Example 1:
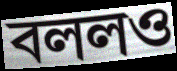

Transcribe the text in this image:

বললও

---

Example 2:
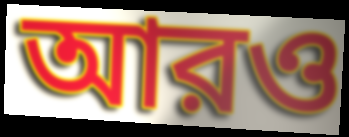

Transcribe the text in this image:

আরও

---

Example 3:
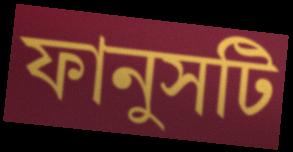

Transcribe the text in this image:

ফানুসটি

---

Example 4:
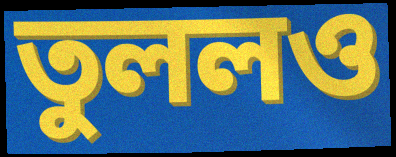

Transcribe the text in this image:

তুললও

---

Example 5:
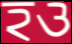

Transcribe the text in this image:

হও